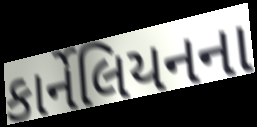
કાર્નેલિયનના